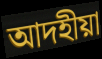
আদহীয়া